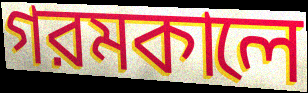
গরমকালে